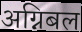
अग्निबल